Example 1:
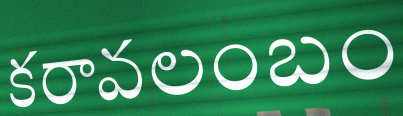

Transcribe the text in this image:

కరావలంబం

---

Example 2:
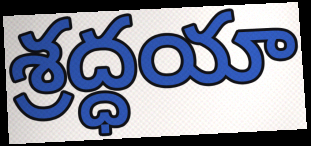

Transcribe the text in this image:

శ్రద్ధయా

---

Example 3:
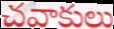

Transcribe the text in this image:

చవాకులు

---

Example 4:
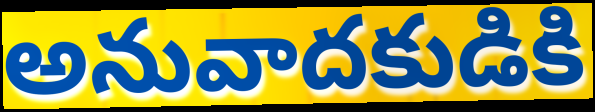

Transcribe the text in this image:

అనువాదకుడికి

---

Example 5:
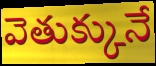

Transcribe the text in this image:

వెతుక్కునే